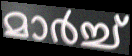
മാർച്ച്